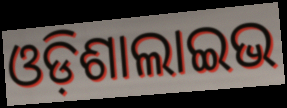
ଓଡ଼ିଶାଲାଇଭ